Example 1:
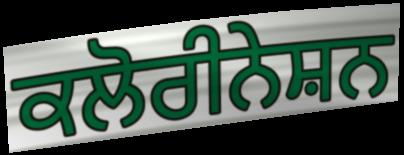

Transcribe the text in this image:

ਕਲੋਰੀਨੇਸ਼ਨ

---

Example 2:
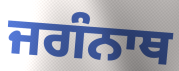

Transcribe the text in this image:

ਜਗੰਨਾਥ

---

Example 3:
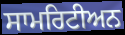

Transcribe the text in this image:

ਸਾਮਰਿਟੀਅਨ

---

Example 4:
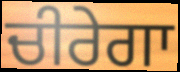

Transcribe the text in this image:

ਚੀਰੇਗਾ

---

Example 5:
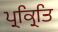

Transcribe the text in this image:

ਪ੍ਰਕ੍ਰਿਤਿ